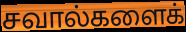
சவால்களைக்